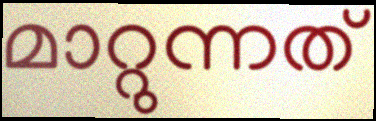
മാറ്റുന്നത്